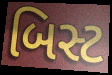
બિસ્ટ